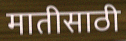
मातीसाठी